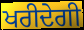
ਖਰੀਦੇਗੀ